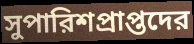
সুপারিশপ্রাপ্তদের